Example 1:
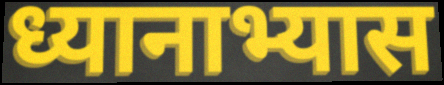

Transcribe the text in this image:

ध्यानाभ्यास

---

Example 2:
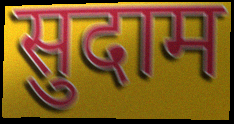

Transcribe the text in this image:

सुदाम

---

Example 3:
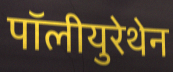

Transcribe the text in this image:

पॉलीयुरेथेन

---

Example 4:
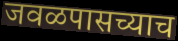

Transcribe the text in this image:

जवळपासच्याच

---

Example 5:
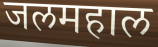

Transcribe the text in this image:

जलमहाल